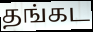
தங்கட